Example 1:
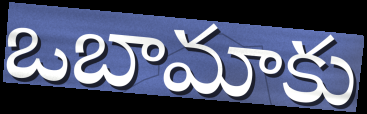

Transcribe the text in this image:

ఒబామాకు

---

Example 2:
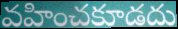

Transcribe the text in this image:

వహించకూడదు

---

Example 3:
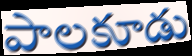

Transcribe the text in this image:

పాలకూడు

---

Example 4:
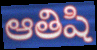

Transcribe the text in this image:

ఆతిషి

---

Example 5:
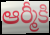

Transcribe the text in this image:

ఆర్మీకి